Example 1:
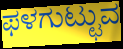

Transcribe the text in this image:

ಫಳಗುಟ್ಟುವ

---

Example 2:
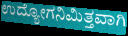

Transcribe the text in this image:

ಉದ್ಯೋಗನಿಮಿತ್ತವಾಗಿ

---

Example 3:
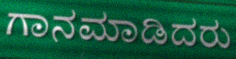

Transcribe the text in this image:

ಗಾನಮಾಡಿದರು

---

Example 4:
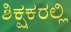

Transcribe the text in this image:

ಶಿಕ್ಷಕರಲ್ಲಿ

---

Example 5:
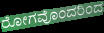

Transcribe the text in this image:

ರೋಗವೊಂದರಿಂದ